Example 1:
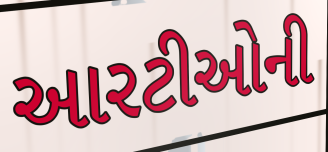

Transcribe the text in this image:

આરટીઓની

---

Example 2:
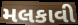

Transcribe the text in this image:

મલકાવી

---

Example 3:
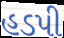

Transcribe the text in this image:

હડપી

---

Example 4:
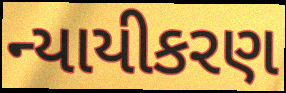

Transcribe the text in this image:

ન્યાયીકરણ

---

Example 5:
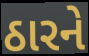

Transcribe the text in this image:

ઠારને